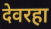
देवरहा